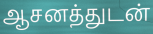
ஆசனத்துடன்